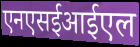
एनएसईआईएल